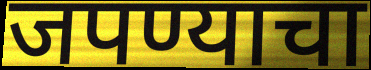
जपण्याचा